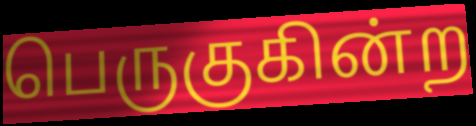
பெருகுகின்ற